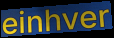
einhver